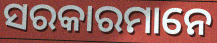
ସରକାରମାନେ